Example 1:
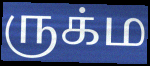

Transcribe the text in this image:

ருக்ம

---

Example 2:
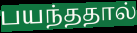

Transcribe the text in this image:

பயந்ததால்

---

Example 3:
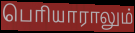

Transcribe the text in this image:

பெரியாராலும்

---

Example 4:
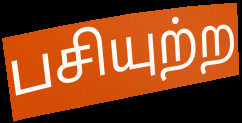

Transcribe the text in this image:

பசியுற்ற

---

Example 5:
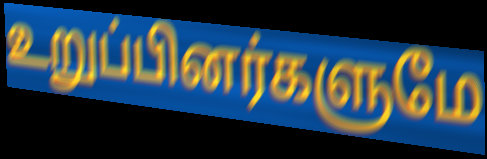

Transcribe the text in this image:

உறுப்பினர்களுமே